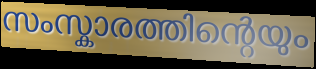
സംസ്കാരത്തിന്റെയും